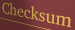
Checksum